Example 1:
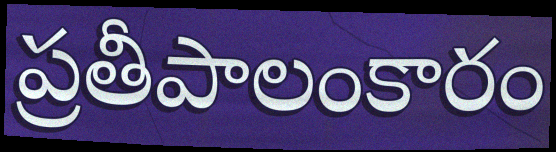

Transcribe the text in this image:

ప్రతీపాలంకారం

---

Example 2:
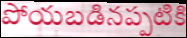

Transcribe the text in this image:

పోయబడినప్పటికి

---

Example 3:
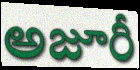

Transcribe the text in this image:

అజూరీ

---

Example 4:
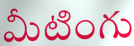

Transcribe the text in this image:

మీటింగు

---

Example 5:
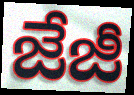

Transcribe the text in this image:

జేజీ